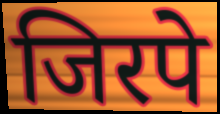
जिरपे